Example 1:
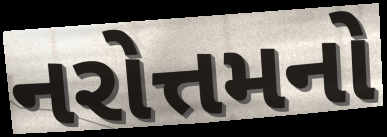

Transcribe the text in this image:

નરોત્તમનો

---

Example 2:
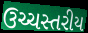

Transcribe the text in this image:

ઉચ્ચસ્તરીય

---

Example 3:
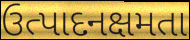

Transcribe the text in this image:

ઉત્પાદનક્ષમતા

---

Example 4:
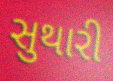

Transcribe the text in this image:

સુથારી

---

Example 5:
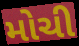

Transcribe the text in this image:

મોચી